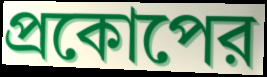
প্রকোপের